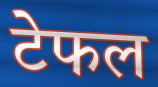
टेफल